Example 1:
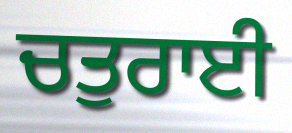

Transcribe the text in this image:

ਚਤੁਰਾਈ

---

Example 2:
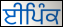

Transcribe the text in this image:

ਈਪਿੰਕ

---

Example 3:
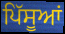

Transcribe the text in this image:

ਪਿੱਸੂਆਂ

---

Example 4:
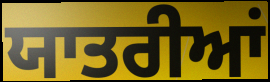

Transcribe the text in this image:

ਯਾਤਰੀਆਂ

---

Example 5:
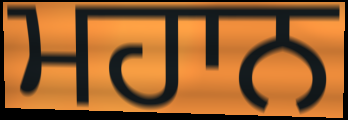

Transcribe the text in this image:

ਮਹਾਨ